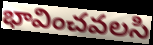
భావించవలసి